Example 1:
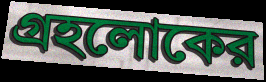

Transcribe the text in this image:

গ্রহলোকের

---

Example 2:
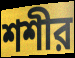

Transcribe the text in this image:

শশীর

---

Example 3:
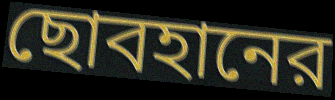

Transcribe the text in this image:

ছোবহানের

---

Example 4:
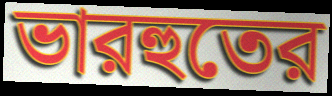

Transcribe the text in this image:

ভারহুতের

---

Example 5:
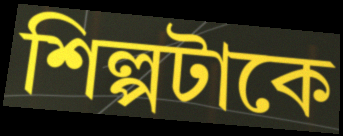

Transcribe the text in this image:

শিল্পটাকে